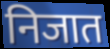
निजात